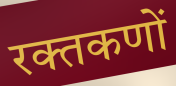
रक्तकणों